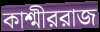
কাশ্মীররাজ